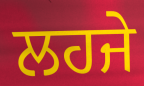
ਲਹਜੇ